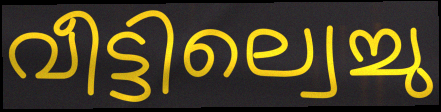
വീട്ടില്വെച്ചു